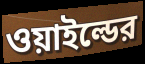
ওয়াইল্ডের